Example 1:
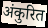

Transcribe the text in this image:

अंकुरित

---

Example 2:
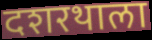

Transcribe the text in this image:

दशरथाला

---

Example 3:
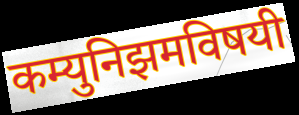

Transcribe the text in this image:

कम्युनिझमविषयी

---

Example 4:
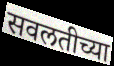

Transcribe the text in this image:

सवलतीच्या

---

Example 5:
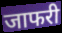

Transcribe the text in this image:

जाफरी